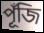
পূঁজি